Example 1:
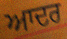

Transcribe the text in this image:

ਆਦਰ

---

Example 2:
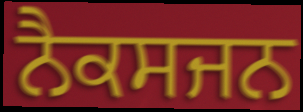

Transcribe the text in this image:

ਨੈਕਸਜਨ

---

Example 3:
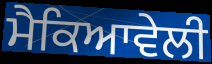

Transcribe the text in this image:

ਮੈਕਿਆਵੇਲੀ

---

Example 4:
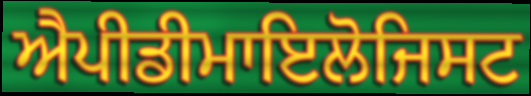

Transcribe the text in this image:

ਐਪੀਡੀਮਾਇਲੋਜਿਸਟ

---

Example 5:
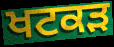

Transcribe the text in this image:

ਖਟਕੜ